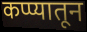
कप्प्यातून